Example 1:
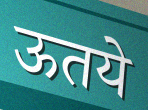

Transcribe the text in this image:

ऊतये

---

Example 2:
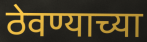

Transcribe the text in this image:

ठेवण्याच्या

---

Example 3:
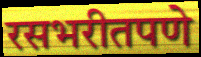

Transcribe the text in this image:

रसभरीतपणे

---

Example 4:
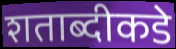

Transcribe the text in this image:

शताब्दीकडे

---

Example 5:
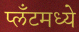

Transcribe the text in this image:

प्लँटमध्ये